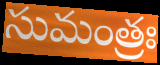
సుమంత్రః